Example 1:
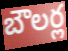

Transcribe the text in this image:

బౌలర్ల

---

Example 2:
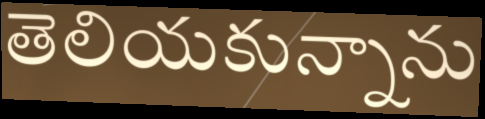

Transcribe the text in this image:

తెలియకున్నాను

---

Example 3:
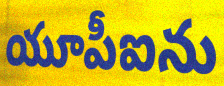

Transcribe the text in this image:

యూపీఐను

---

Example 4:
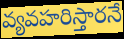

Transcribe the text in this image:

వ్యవహరిస్తారనే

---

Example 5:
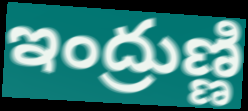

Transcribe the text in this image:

ఇంద్రుణ్ణి